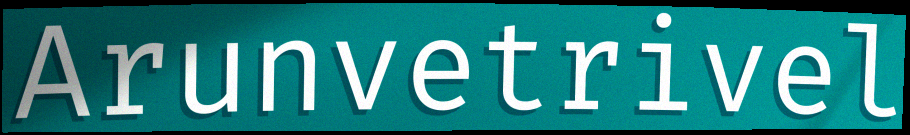
Arunvetrivel